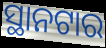
ସ୍ଥାନଟାର